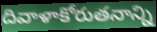
దివాళాకోరుతనాన్ని